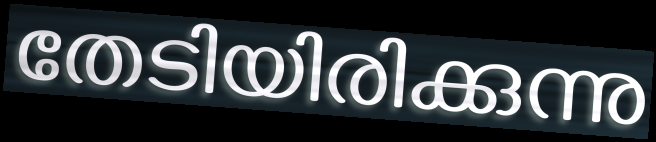
തേടിയിരിക്കുന്നു